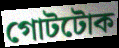
গোটটোক